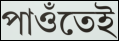
পাওঁতেই